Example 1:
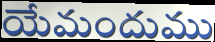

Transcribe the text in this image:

యేమందుము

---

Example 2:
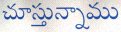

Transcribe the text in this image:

చూస్తున్నాము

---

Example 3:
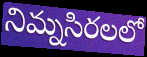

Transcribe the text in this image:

నిమ్నసిరలలో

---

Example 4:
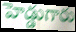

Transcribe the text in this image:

హెడ్డుగారు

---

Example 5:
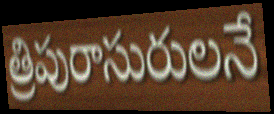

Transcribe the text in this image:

త్రిపురాసురులనే